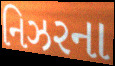
નિઝરના